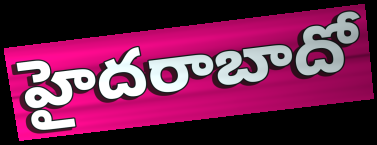
హైదరాబాదో